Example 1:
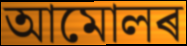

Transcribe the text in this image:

আমোলৰ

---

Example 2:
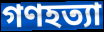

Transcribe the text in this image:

গণহত্যা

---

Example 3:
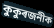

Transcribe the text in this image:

কুকুৰজনীক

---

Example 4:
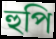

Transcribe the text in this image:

হুপি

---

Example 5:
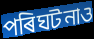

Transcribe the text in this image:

পৰিঘটনাও